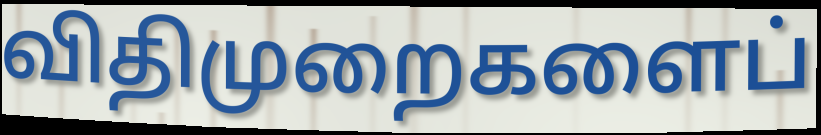
விதிமுறைகளைப்